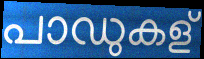
പാഡുകള്